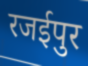
रजईपुर